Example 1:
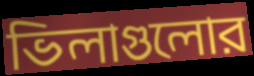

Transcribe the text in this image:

ভিলাগুলোর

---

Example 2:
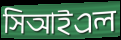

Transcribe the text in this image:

সিআইএল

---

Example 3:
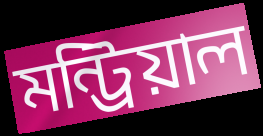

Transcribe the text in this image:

মন্ট্রিয়াল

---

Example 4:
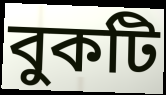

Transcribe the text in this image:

বুকটি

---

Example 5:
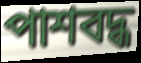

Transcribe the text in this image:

পাশবদ্ধ